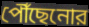
পৌঁছেনোর